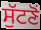
ਸੁੱਟਣੋਂ